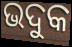
ଭଦୁକ